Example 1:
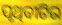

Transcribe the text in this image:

ପୃଥିବୀଟିର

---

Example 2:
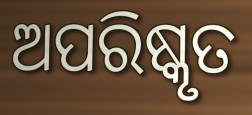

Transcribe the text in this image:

ଅପରିଷ୍କୃତ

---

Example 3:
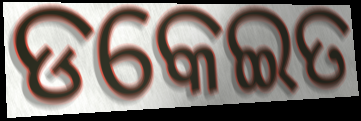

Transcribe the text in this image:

ଡକେଇତ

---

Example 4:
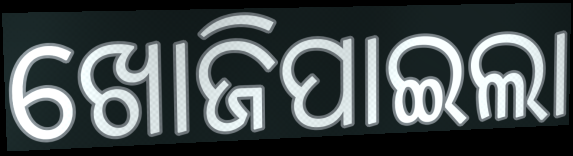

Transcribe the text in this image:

ଖୋଜିପାଇଲା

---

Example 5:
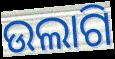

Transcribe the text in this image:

ଉଲାଗି